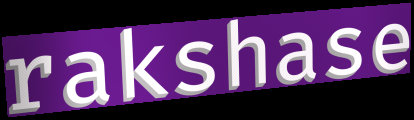
rakshase